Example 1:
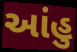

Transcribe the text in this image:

આંહુ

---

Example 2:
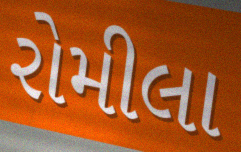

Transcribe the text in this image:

રોમીલા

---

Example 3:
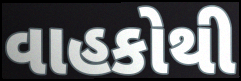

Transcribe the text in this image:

વાહકોથી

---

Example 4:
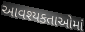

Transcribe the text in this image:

આવશ્યકતાઓમાં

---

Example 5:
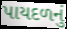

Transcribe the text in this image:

પાયદળનું